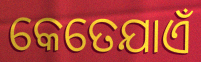
କେତେଯାଏଁ